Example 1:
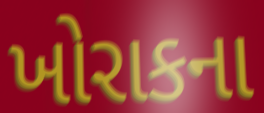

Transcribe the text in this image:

ખોરાકના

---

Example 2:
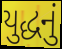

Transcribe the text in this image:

યુદ્ધનું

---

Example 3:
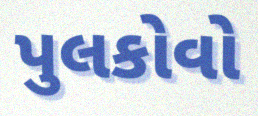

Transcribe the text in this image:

પુલકોવો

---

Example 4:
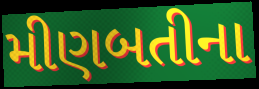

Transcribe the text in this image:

મીણબતીના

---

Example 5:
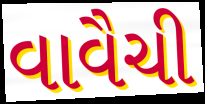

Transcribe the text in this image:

વાવૈચી